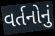
વર્તનોનું